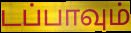
டப்பாவும்